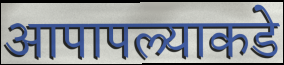
आपापल्याकडे